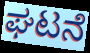
ಘಟನೆ